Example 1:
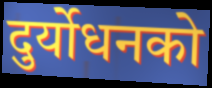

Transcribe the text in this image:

दुर्योधनको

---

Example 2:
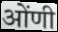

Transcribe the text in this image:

ओंणी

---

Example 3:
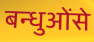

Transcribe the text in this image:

बन्धुओंसे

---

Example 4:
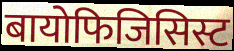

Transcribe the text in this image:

बायोफिजिसिस्ट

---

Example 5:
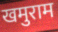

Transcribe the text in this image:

खमुराम